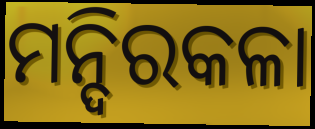
ମନ୍ଦିରକଳା